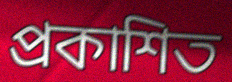
প্ৰকাশিত